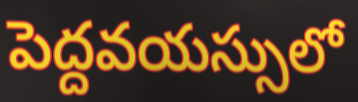
పెద్దవయస్సులో